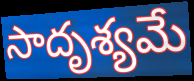
సాదృశ్యమే